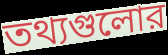
তথ্যগুলোর